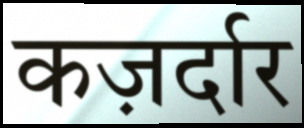
कज़र्दार